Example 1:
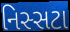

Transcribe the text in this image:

નિસ્સટા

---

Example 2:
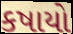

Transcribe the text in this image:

કષાયો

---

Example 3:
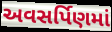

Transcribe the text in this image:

અવસર્પિણમાં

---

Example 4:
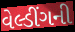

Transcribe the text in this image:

વેલ્ડીંગની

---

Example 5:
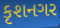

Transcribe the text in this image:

કૃશનગર